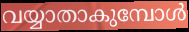
വയ്യാതാകുമ്പോൾ